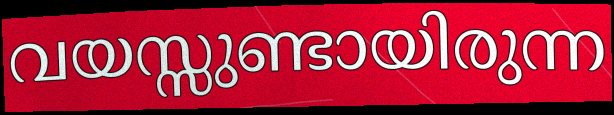
വയസ്സുണ്ടായിരുന്ന